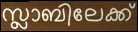
സ്ലാബിലേക്ക്